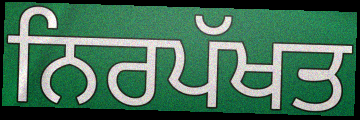
ਨਿਰਪੱਖਤ